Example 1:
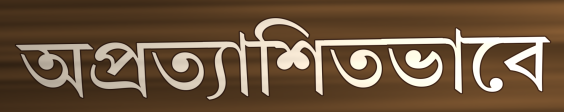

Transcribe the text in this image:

অপ্রত্যাশিতভাবে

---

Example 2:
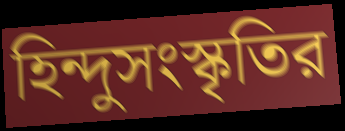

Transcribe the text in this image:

হিন্দুসংস্কৃতির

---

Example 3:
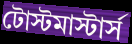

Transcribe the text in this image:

টোস্টমাস্টার্স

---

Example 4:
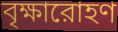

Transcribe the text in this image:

বৃক্ষারোহণ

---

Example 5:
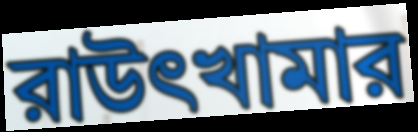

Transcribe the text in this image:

রাউৎখামার